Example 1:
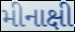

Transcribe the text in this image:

મીનાક્ષી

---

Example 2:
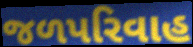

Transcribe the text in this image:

જળપરિવાહ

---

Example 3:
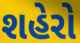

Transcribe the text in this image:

શહેરો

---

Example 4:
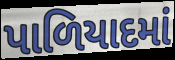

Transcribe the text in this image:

પાળિયાદમાં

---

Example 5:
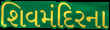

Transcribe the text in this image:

શિવમંદિરના